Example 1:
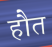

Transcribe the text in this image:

हौत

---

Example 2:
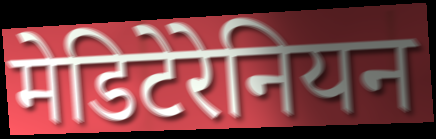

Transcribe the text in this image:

मेडिटेरेनियन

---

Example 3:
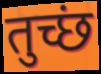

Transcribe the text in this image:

तुच्छं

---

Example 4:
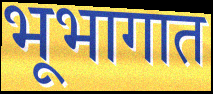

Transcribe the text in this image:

भूभागात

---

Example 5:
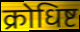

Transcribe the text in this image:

क्रोधिष्ट